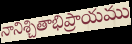
నానిశ్చితాభిప్రాయము